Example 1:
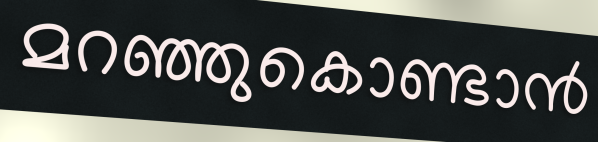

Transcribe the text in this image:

മറഞ്ഞുകൊണ്ടാൻ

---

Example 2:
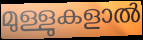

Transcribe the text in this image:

മുള്ളുകളാൽ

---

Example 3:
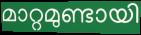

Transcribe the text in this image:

മാറ്റമുണ്ടായി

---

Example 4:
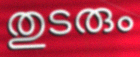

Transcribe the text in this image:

തുടരും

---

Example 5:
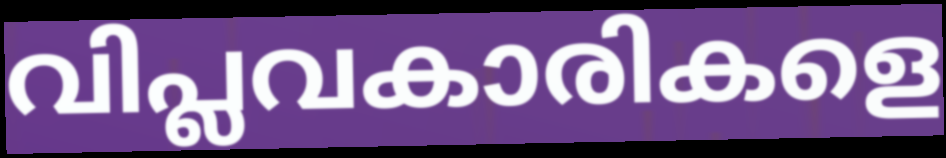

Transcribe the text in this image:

വിപ്ലവകാരികളെ